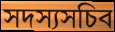
সদস্যসচিব